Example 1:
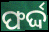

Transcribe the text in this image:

ଫର୍ଦ୍ଦ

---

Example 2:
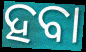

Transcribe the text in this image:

ହବା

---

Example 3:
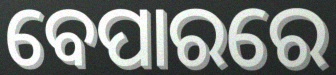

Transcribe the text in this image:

ବେପାରରେ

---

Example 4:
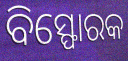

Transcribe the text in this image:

ବିସ୍ଫୋରକ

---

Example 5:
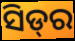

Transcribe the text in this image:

ସିଡ୍‌ର